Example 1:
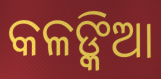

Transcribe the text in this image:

କଳଙ୍କିଆ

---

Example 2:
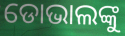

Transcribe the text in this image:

ଡୋଭାଲଙ୍କୁ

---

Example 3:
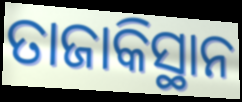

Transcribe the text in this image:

ତାଜାକିସ୍ଥାନ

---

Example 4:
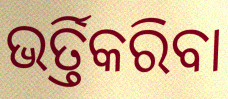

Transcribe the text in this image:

ଭର୍ତ୍ତିକରିବା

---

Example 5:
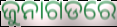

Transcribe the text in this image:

ଜୁନାଗଡରେ